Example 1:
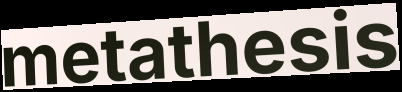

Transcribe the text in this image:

metathesis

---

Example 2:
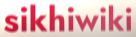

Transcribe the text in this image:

sikhiwiki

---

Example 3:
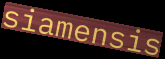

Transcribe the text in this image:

siamensis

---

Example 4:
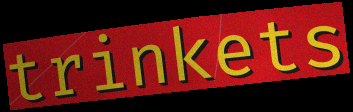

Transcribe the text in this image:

trinkets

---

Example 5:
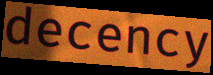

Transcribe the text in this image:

decency